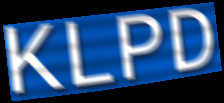
KLPD